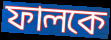
ফালকে